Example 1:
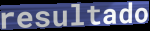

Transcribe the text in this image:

resultado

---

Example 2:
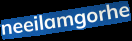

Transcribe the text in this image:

neeilamgorhe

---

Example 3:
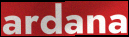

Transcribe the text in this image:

ardana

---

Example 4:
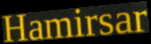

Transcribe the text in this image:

Hamirsar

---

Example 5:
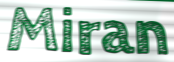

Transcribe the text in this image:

Miran